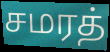
சமரத்